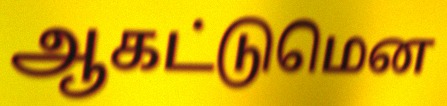
ஆகட்டுமென